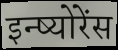
इन्ष्योरेंस